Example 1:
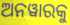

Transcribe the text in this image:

ଅନୱାରକୁ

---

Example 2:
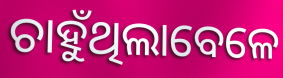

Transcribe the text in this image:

ଚାହୁଁଥିଲାବେଳେ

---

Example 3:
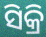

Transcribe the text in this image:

ସିକ୍ରି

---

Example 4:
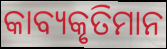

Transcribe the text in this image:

କାବ୍ୟକୃତିମାନ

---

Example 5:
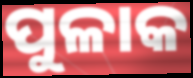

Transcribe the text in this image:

ପୁଳାକ